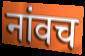
नांवच